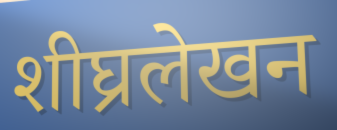
शीघ्रलेखन